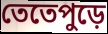
তেতেপুড়ে